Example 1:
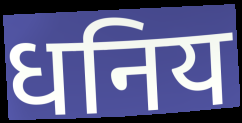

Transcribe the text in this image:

धनिय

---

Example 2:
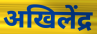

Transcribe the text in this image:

अखिलेंद्र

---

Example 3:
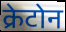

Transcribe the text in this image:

क्रेटोन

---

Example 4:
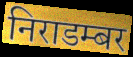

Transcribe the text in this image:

निराडम्बर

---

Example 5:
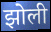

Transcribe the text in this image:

झोली